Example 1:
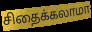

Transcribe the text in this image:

சிதைக்கலாமா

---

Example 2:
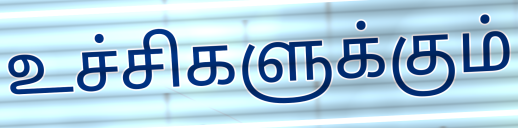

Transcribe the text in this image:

உச்சிகளுக்கும்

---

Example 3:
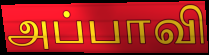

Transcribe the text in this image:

அப்பாவி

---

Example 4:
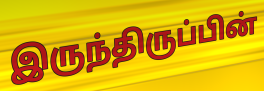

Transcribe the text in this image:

இருந்திருப்பின்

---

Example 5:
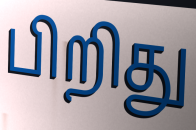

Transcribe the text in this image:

பிறிது